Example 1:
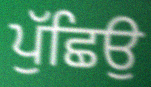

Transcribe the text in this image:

ਪੁੱਛਿਉ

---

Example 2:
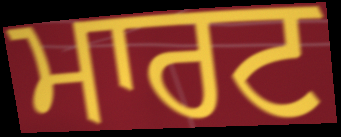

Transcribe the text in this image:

ਮਾਰਟ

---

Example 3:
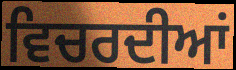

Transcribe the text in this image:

ਵਿਚਰਦੀਆਂ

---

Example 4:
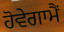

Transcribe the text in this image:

ਹੋਵੇਗਾਮੈਂ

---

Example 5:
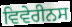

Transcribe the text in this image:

ਵਿਵੇਰੀਨਸ